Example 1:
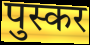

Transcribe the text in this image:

पुस्कर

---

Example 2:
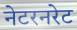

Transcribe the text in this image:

नेटरनरेट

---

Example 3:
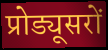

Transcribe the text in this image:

प्रोड्यूसरों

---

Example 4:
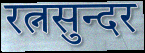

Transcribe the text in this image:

रत्नसुन्दर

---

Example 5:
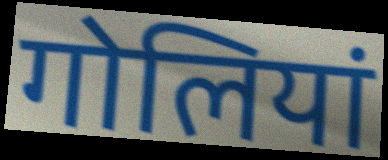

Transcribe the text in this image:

गोलियां